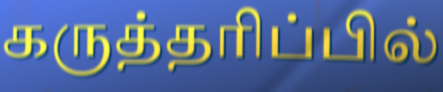
கருத்தரிப்பில்